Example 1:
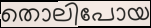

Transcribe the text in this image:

തൊലിപോയ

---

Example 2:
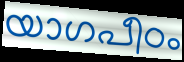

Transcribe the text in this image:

യാഗപീഠം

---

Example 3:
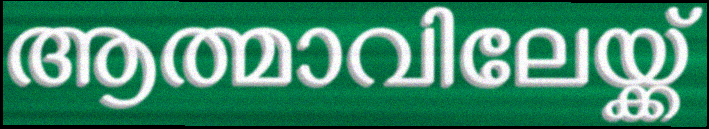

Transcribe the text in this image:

ആത്മാവിലേയ്ക്ക്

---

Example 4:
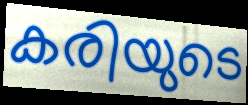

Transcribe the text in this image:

കരിയുടെ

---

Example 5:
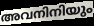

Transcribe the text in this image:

അവനിനിയും